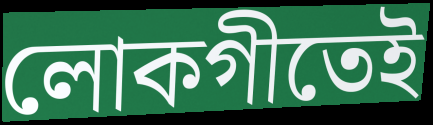
লোকগীতেই